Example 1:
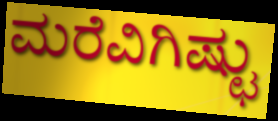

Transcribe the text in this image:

ಮರೆವಿಗಿಷ್ಟು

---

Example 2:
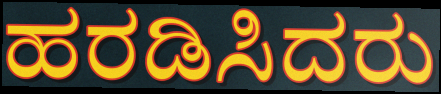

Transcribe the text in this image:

ಹರಡಿಸಿದರು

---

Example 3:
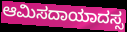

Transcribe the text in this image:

ಆಮಿಸದಾಯಾದಸ್ಸ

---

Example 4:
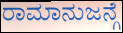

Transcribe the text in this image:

ರಾಮಾನುಜನ್ಗೆ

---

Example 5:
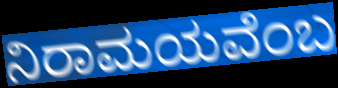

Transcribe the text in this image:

ನಿರಾಮಯವೆಂಬ